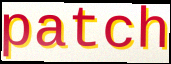
patch